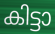
കിട്ടാ